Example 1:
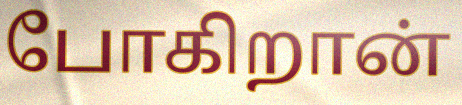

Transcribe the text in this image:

போகிறான்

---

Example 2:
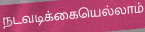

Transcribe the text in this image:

நடவடிக்கையெல்லாம்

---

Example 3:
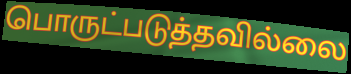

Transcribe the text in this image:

பொருட்படுத்தவில்லை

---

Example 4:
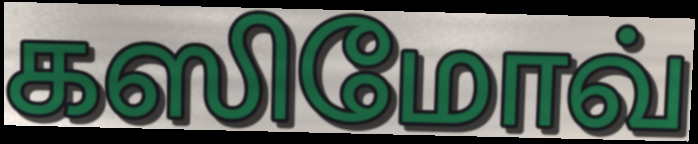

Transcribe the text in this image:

கஸிமோவ்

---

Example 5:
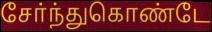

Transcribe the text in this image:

சேர்ந்துகொண்டே